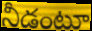
నీడంటూ